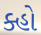
ક્હો